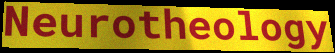
Neurotheology